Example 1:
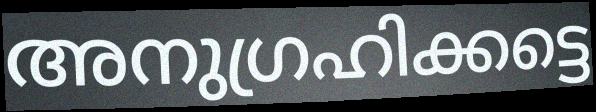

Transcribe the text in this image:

അനുഗ്രഹിക്കട്ടെ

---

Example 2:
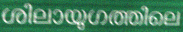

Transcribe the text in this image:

ശിലായുഗത്തിലെ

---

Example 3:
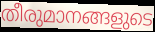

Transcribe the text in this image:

തീരുമാനങ്ങളുടെ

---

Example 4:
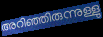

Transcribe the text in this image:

അറിഞ്ഞിരുന്നുള്ളു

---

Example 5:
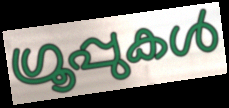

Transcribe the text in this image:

ഗ്രൂപ്പുകൾ